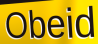
Obeid